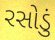
રસોડું